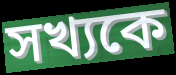
সখ্যকে